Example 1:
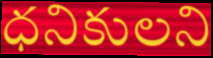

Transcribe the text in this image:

ధనికులని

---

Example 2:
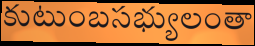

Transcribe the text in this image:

కుటుంబసభ్యులంతా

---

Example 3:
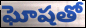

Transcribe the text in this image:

ఘోషతో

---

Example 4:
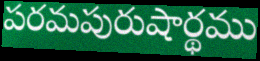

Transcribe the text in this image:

పరమపురుషార్థము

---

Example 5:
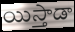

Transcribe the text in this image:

యిస్తాడా